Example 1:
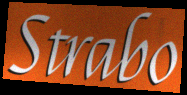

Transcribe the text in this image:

Strabo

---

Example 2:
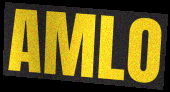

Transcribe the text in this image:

AMLO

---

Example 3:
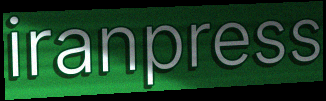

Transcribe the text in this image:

iranpress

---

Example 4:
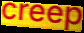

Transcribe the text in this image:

creep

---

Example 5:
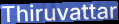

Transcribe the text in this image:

Thiruvattar